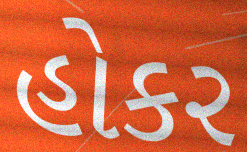
હોકર